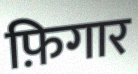
फ़िगार